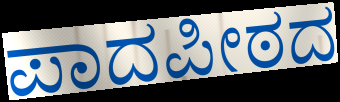
ಪಾದಪೀಠದ